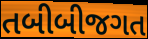
તબીબીજગત